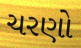
ચરણો